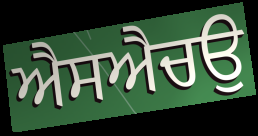
ਐਸਐਚਉ